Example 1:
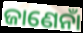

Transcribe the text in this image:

ଜାଣେନାଁ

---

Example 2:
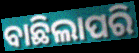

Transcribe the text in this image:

ବାଛିଲାପରି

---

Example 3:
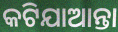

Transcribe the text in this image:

କଟିଯାଆନ୍ତା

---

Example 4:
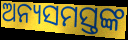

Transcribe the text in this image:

ଅନ୍ୟସମସ୍ତଙ୍କ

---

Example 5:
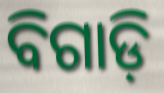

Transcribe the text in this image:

ବିଗାଡ଼ି